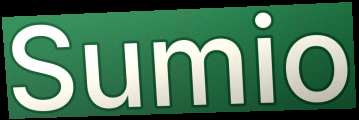
Sumio